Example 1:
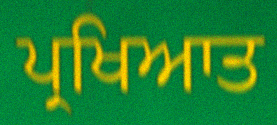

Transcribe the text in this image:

ਪ੍ਰਖਿਆਤ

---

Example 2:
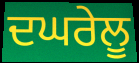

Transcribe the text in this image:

ਦਘਰੇਲੂ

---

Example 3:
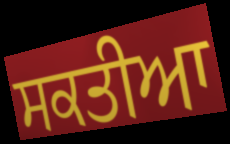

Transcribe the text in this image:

ਸਕਤੀਆ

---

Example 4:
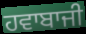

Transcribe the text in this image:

ਹਵਾਬਾਜੀ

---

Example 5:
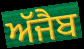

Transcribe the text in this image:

ਅੱਜੈਬ